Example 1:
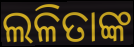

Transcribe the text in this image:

ଲଳିତାଙ୍କ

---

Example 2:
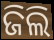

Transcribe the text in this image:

ଜିଲି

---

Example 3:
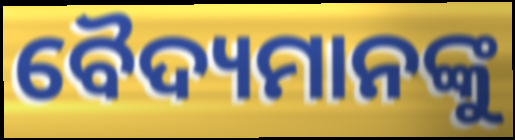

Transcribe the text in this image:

ବୈଦ୍ୟମାନଙ୍କୁ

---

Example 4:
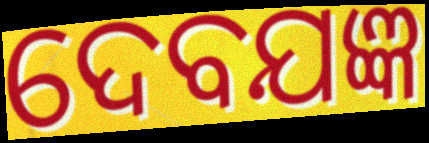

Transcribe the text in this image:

ଦେବଯଜ୍ଞ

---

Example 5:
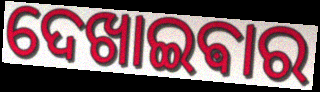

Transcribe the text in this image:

ଦେଖାଇଵାର